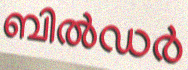
ബിൽഡർ